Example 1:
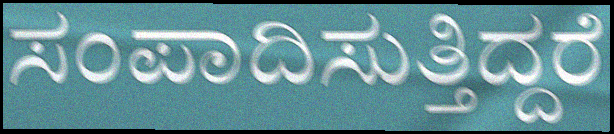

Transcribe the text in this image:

ಸಂಪಾದಿಸುತ್ತಿದ್ದರೆ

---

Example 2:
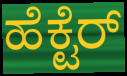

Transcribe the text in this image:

ಹೆಕ್ಟೆರ್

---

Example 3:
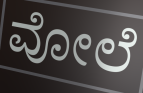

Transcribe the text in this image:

ವೋಲೆ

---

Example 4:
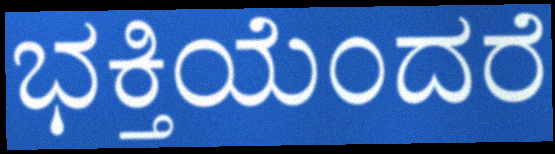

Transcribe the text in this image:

ಭಕ್ತಿಯೆಂದರೆ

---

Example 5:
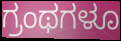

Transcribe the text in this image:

ಗ್ರಂಥಗಳೂ